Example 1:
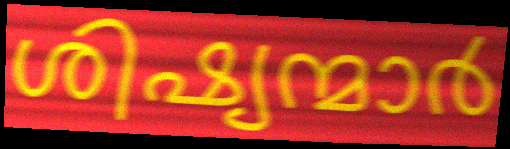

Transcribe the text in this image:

ശിഷ്യന്മാർ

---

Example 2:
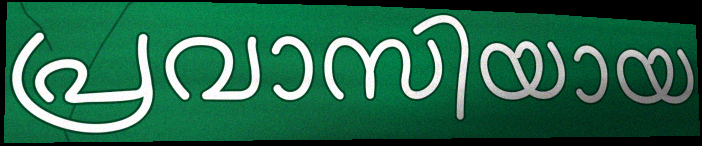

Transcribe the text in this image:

പ്രവാസിയായ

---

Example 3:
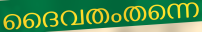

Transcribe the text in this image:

ദൈവതംതന്നെ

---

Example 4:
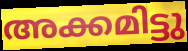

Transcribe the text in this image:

അക്കമിട്ടു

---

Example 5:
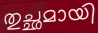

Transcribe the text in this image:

തുച്ഛമായി